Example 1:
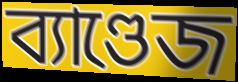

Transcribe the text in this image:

ব্যাণ্ডেজ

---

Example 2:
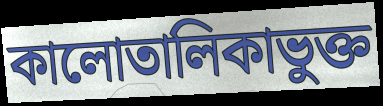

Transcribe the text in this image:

কালোতালিকাভুক্ত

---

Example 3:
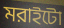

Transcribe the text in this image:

মরাইটো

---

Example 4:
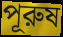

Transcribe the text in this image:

পূরুষ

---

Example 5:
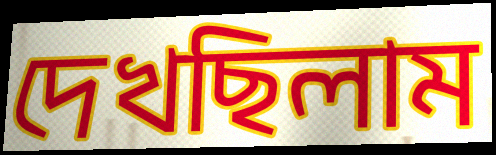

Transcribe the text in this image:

দেখছিলাম